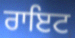
ਰਾਇਟ